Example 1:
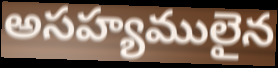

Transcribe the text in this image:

అసహ్యములైన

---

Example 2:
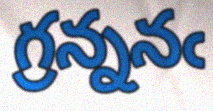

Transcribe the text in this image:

గ్రన్ననఁ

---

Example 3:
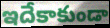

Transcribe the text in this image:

ఇదేకాకుండా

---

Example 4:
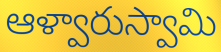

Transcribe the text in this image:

ఆళ్వారుస్వామి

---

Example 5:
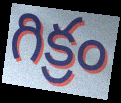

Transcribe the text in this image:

గిక్రం